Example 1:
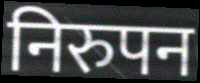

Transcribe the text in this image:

निरुपन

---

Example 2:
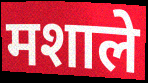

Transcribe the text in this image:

मशाले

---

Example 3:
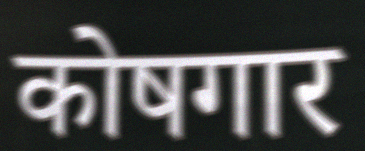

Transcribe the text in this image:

कोषगार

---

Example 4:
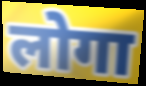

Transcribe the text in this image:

लोगा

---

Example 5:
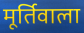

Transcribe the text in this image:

मूर्तिवाला